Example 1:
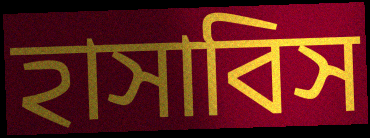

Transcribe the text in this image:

হাসাবিস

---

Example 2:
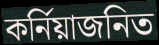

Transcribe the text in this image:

কর্নিয়াজনিত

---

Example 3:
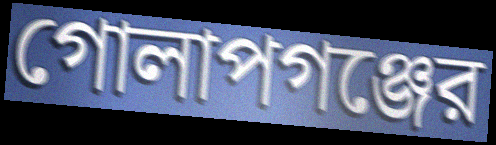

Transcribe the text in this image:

গোলাপগঞ্জের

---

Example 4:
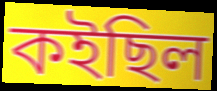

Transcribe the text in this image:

কইছিল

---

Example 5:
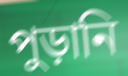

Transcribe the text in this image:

পুড়ানি